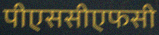
पीएससीएफसी